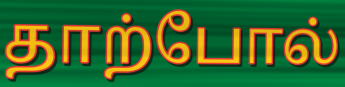
தாற்போல்